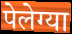
पेलेग्या